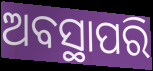
ଅବସ୍ଥାପରି